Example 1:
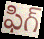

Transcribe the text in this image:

ఫిగ్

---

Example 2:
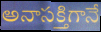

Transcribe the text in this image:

అనాసక్తిగానే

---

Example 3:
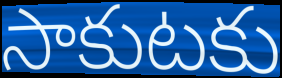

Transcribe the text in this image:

సాకుటకు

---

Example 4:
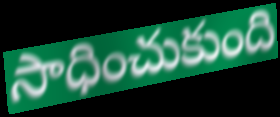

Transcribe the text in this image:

సాధించుకుంది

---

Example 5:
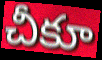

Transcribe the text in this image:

చీకూ